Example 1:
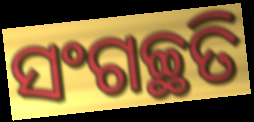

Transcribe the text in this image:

ସଂଗଚ୍ଛତି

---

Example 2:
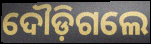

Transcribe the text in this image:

ଦୌଡ଼ିଗଲେ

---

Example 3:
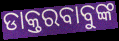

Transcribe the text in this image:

ଡାକ୍ତରବାବୁଙ୍କ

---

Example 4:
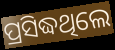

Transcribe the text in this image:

ପ୍ରସିଦ୍ଧଥିଲେ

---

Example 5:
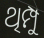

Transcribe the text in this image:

ଥିମ୍ପୁ